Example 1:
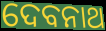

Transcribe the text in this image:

ଦେବନାଥ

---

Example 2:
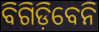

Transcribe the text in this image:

ବିଗିଡ଼ିବେନି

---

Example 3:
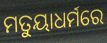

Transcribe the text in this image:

ମତୁୟାଧର୍ମରେ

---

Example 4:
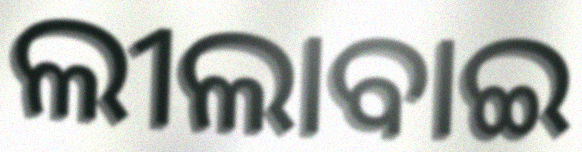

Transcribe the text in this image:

ଲୀଲାବାଇ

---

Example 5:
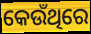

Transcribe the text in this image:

କେଉଁଥିରେ